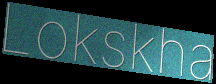
Lokskha